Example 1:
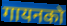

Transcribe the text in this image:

गायनको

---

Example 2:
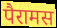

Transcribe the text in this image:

पैरामस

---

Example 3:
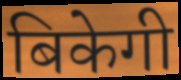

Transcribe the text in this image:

बिकेगी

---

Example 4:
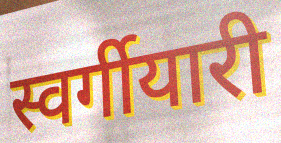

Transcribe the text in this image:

स्वर्गीयारी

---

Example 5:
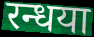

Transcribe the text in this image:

रन्धया